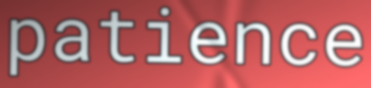
patience